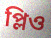
প্লিও